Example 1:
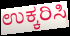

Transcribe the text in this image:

ಉಕ್ಕರಿಸಿ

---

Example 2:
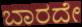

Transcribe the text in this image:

ಬಾರದೇ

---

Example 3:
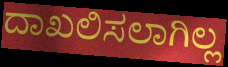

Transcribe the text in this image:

ದಾಖಲಿಸಲಾಗಿಲ್ಲ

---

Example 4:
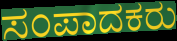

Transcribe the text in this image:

ಸಂಪಾದಕರು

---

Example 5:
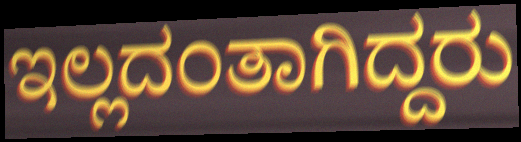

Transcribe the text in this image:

ಇಲ್ಲದಂತಾಗಿದ್ದರು